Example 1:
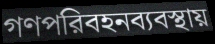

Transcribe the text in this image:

গণপরিবহনব্যবস্থায়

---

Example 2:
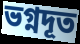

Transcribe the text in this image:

ভগ্নদূত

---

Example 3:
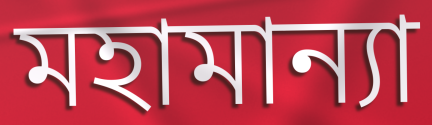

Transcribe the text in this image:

মহামান্যা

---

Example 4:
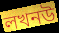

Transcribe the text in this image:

লখনউ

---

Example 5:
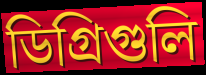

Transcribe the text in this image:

ডিগ্রিগুলি